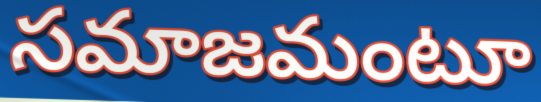
సమాజమంటూ